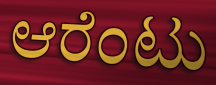
ಆರೆಂಟು